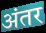
अंतर